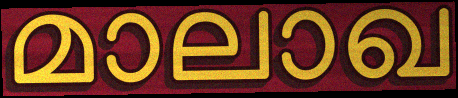
മാലാഖ